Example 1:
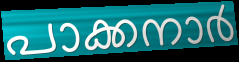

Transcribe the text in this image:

പാക്കനാർ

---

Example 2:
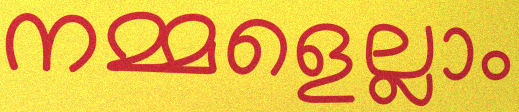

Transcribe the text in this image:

നമ്മളെല്ലാം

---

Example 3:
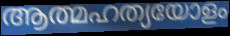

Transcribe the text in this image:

ആത്മഹത്യയോളം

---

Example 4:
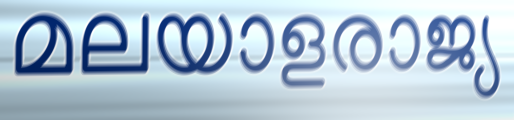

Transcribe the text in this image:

മലയാളരാജ്യ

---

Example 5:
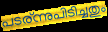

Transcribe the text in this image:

പടര്ന്നുപിടിച്ചതും